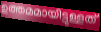
ഉത്തമമായിട്ടുള്ളത്